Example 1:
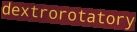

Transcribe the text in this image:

dextrorotatory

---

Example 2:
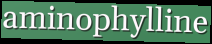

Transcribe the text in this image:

aminophylline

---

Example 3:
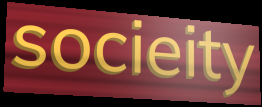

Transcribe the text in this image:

socieity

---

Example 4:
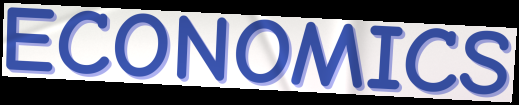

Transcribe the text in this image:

ECONOMICS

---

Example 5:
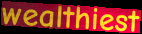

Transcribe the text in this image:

wealthiest